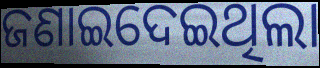
ଜଣାଇଦେଇଥିଲା